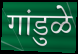
गांडुळे